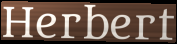
Herbert